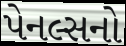
પેનલ્સનો